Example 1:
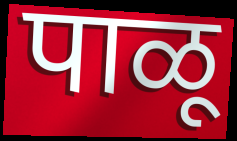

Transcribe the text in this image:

पाळू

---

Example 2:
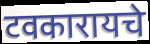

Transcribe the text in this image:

टवकारायचे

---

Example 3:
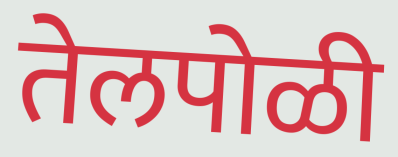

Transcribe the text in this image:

तेलपोळी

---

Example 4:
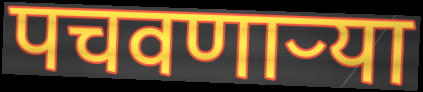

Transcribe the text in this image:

पचवणाऱ्या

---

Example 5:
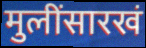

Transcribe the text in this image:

मुलींसारखं